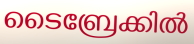
ടൈബ്രേക്കിൽ